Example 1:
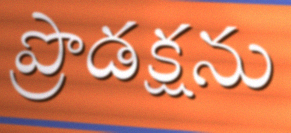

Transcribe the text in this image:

ప్రొడక్షను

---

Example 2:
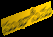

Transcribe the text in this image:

సుఖాసీను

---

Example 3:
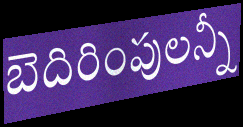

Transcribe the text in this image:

బెదిరింపులన్నీ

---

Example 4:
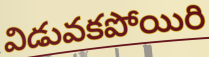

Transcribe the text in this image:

విడువకపోయిరి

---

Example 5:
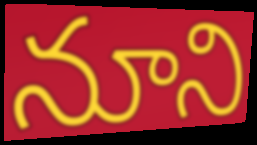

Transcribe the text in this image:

నూని